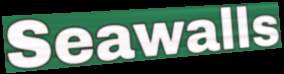
Seawalls